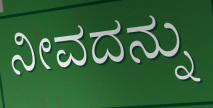
ನೀವದನ್ನು